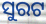
ସୁରଟ